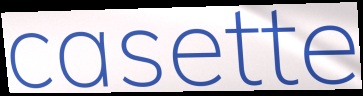
casette